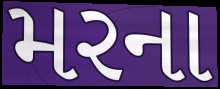
મરના